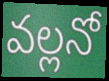
వల్లనో